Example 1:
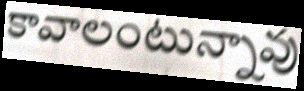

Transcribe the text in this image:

కావాలంటున్నావు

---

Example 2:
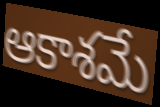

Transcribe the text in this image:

ఆకాశమే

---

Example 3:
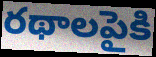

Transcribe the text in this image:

రథాలపైకి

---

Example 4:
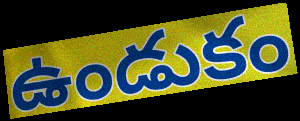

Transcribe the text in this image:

ఉండుకం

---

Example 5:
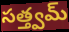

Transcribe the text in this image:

సత్త్వమ్